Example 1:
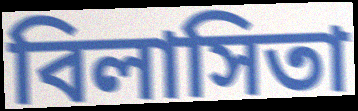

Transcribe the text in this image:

বিলাসিতা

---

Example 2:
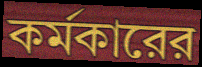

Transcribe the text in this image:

কর্মকারের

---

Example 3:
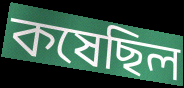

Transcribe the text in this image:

কষেছিল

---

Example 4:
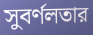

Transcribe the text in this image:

সুবর্ণলতার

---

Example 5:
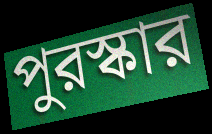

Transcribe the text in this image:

পুরস্কার